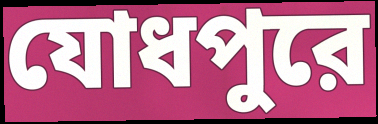
যোধপুরে